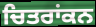
ਚਿਤਰਾਂਕਨ